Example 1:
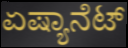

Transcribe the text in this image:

ಏಷ್ಯಾನೆಟ್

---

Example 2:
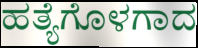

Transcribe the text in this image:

ಹತ್ಯೆಗೊಳಗಾದ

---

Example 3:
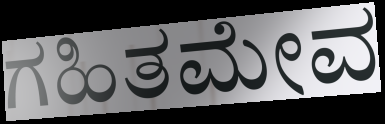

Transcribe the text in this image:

ಗಹಿತಮೇವ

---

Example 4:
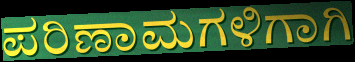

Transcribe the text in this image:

ಪರಿಣಾಮಗಳಿಗಾಗಿ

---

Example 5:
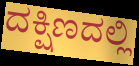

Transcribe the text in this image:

ದಕ್ಷಿಣದಲ್ಲಿ